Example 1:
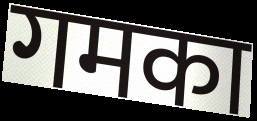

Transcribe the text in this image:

गमका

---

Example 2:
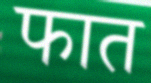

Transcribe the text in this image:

फात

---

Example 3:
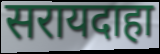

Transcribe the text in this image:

सरायदाहा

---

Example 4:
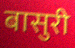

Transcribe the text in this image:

बासुरी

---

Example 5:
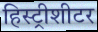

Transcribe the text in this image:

हिस्‍ट्रीशीटर